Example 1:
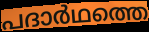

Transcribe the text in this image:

പദാർഥത്തെ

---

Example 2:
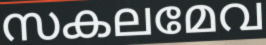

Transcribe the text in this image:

സകലമേവ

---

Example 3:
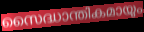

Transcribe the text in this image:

സൈദ്ധാന്തികമായും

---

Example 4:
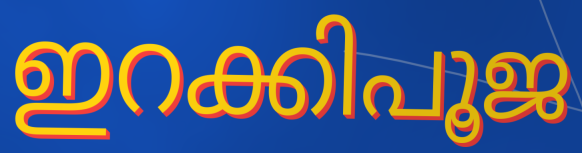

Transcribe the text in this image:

ഇറക്കിപൂജ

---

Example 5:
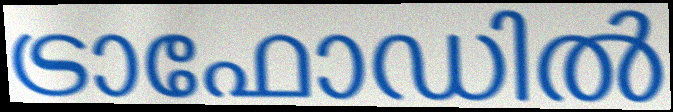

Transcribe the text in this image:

ട്രാഫോഡിൽ